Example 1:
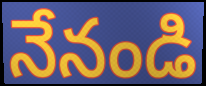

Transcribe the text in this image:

నేనండి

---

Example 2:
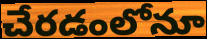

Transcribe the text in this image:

చేరడంలోనూ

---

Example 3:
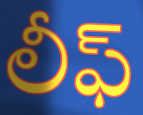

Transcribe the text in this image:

లీఫ్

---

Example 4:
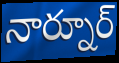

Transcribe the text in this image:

నార్నూర్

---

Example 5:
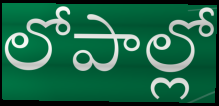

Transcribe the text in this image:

లోపాల్లో